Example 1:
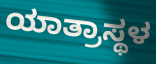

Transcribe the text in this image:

ಯಾತ್ರಾಸ್ಥಳ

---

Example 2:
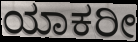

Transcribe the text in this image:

ಯಾಕರೀ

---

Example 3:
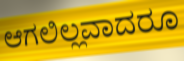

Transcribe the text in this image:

ಆಗಲಿಲ್ಲವಾದರೂ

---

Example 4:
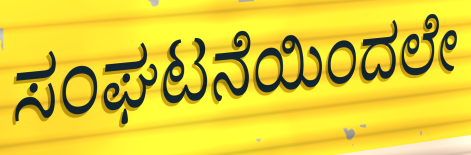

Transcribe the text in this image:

ಸಂಘಟನೆಯಿಂದಲೇ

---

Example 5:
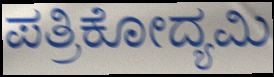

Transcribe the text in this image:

ಪತ್ರಿಕೋದ್ಯಮಿ